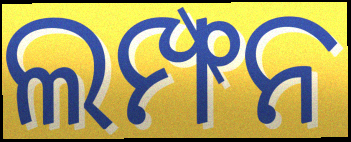
ଲମ୍ଫନ